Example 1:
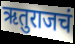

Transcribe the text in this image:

ऋतुराजचं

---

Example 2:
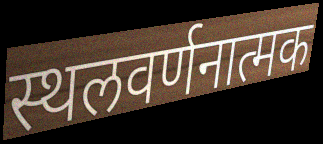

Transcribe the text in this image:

स्थलवर्णनात्मक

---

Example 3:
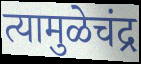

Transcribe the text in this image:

त्यामुळेचंद्र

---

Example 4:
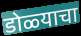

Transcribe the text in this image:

डोळ्याचा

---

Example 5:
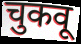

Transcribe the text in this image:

चुकवू